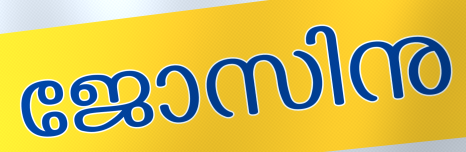
ജോസിനു